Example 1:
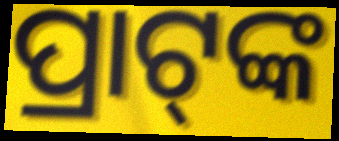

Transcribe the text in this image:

ପ୍ରାଟ୍‍ଙ୍କ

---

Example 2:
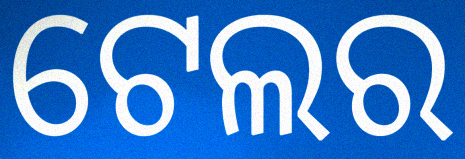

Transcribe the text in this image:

ଟେଲର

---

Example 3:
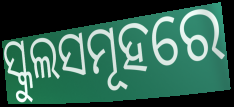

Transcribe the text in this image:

ସ୍କୁଲସମୂହରେ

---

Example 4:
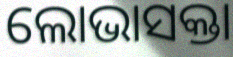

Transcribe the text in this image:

ଲୋଭାସକ୍ତା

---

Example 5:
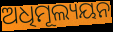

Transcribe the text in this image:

ଅଧିମୂଲ୍ୟୟନ